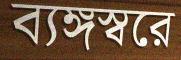
ব্যঙ্গস্বরে